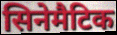
सिनेमैटिक